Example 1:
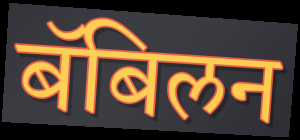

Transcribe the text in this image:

बॅबिलन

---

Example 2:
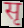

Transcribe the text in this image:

सृ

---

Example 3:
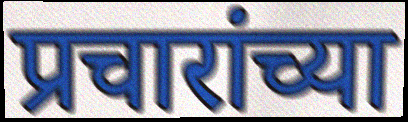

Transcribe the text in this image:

प्रचारांच्या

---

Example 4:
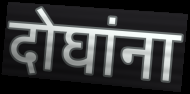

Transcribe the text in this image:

दोघांना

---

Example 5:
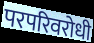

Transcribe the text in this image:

परपरिवरोधी